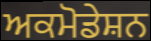
ਅਕਮੋਡੇਸ਼ਨ